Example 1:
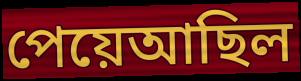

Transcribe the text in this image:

পেয়েআছিল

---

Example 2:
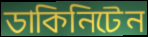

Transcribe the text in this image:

ডাকিনিটেন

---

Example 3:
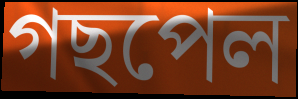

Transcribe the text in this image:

গছপেল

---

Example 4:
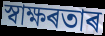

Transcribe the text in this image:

স্বাক্ষৰতাৰ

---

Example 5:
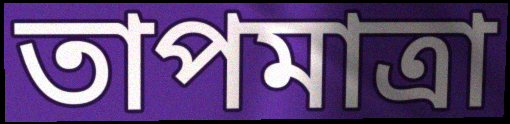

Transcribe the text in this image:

তাপমাত্ৰা